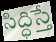
సిద్ధిస్తే